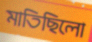
মাতিছিলো